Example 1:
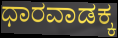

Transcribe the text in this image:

ಧಾರವಾಡಕ್ಕ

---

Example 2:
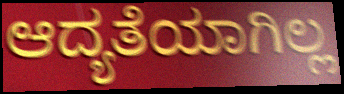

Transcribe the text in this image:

ಆದ್ಯತೆಯಾಗಿಲ್ಲ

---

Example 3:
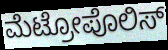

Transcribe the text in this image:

ಮೆಟ್ರೋಪೊಲಿಸ್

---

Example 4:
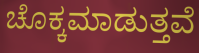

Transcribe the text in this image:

ಚೊಕ್ಕಮಾಡುತ್ತವೆ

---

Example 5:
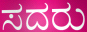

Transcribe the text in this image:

ಸದರು